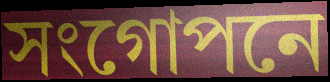
সংগোপনে